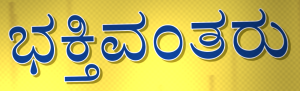
ಭಕ್ತಿವಂತರು